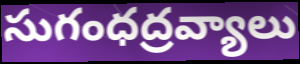
సుగంధద్రవ్యాలు